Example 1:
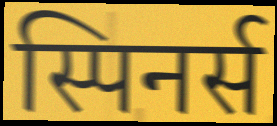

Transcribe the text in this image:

स्पिनर्स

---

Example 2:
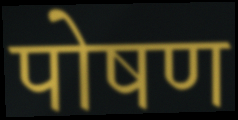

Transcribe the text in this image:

पोषण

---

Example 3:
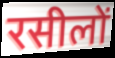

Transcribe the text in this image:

रसीलों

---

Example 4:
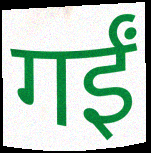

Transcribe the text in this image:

गईं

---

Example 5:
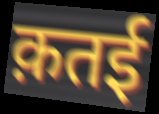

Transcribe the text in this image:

क़तई